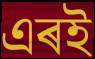
এৰই